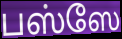
பஸ்ஸே